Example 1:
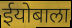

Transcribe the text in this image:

ईयोबाला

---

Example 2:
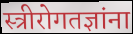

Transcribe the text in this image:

स्त्रीरोगतज्ञांना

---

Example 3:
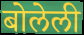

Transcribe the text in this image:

बोलेली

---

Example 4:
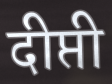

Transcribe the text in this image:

दीप्ती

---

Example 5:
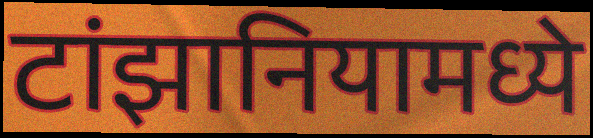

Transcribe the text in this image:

टांझानियामध्ये